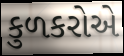
કુળકરોએ